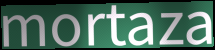
mortaza